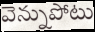
వెన్నుపోటు